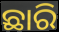
ଛାରି